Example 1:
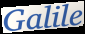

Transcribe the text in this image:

Galile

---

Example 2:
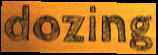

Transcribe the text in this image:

dozing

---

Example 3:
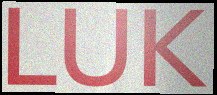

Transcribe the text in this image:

LUK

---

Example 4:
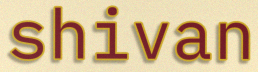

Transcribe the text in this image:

shivan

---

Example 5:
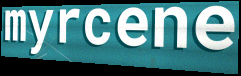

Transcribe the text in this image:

myrcene